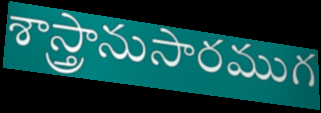
శాస్త్రానుసారముగ